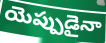
యెప్పుడైనా